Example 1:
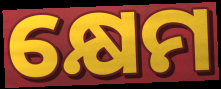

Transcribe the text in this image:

କ୍ଷେମ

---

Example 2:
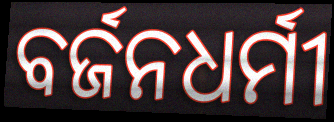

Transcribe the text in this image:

ବର୍ଜନଧର୍ମୀ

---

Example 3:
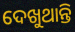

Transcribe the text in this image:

ଦେଖୁଥାନ୍ତି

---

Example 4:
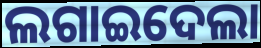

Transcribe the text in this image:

ଲଗାଇଦେଲା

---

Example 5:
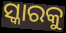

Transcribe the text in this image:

ସ୍କାରକୁ